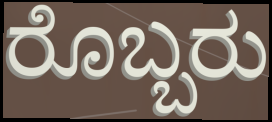
ರೊಬ್ಬರು